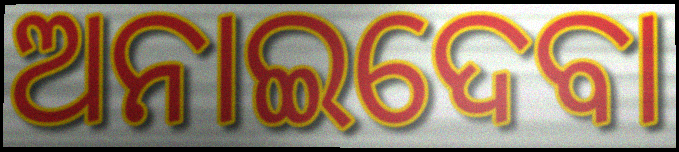
ଅନାଇଦେବା